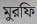
মুরফি